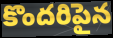
కొందరిపైన